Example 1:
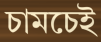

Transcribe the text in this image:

চামচেই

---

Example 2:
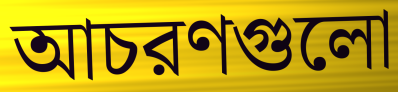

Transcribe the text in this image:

আচরণগুলো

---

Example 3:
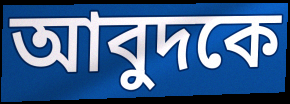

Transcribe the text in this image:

আবুদকে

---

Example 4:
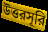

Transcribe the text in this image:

উত্তরসূরি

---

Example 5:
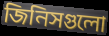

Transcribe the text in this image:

জিনিসগুলো